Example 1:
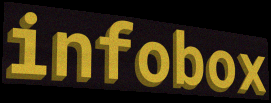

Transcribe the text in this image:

infobox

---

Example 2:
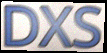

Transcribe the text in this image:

DXS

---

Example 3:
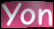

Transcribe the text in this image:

Yon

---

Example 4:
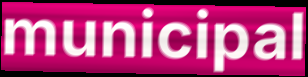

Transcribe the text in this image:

municipal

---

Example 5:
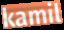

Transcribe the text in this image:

kamil